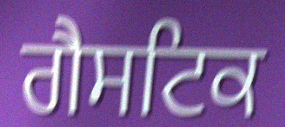
ਗੈਸਟਿਕ